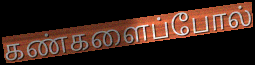
கண்களைப்போல்